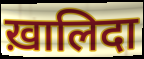
ख़ालिदा